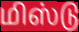
மிஸ்டு